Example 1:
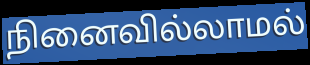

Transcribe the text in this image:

நினைவில்லாமல்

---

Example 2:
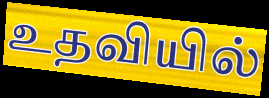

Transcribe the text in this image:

உதவியில்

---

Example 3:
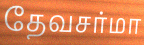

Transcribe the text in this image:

தேவசர்மா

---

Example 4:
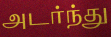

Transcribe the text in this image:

அடர்ந்து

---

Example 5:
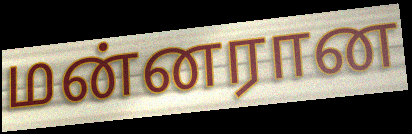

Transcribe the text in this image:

மன்னரான